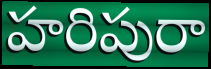
హరిపురా